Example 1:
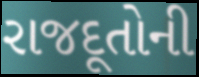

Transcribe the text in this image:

રાજદૂતોની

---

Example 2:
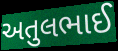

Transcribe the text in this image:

અતુલભાઈ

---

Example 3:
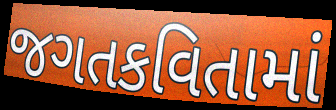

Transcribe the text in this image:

જગતકવિતામાં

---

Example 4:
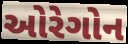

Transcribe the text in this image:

ઓરેગોન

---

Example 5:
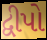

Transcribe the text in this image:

દ્વીપો